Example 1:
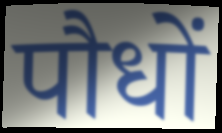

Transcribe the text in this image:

पौधों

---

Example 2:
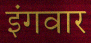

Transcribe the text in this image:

इंगवार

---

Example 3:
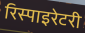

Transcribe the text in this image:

रिस्पाइरेटरी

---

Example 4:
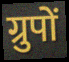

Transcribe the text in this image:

ग्रुपों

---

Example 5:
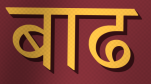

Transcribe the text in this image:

बाढ